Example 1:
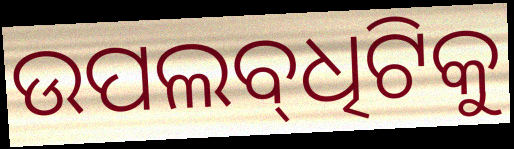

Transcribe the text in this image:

ଉପଲବ୍‌ଧିଟିକୁ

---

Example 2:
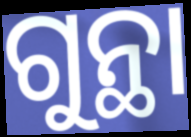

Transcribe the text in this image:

ଗୁନ୍ଥା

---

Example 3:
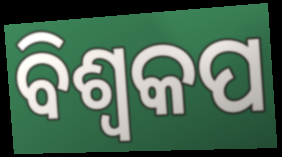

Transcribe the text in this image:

ବିଶ୍ୱକପ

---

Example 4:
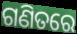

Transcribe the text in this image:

ଗଣିତରେ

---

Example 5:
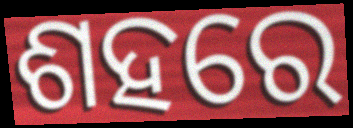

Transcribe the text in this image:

ଶହରେ